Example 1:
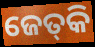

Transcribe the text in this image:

ଜେତ୍‌କି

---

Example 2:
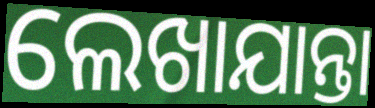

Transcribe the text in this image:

ଲେଖାଯାନ୍ତା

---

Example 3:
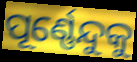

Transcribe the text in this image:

ପୂର୍ଣ୍ଣେନ୍ଦୁକୁ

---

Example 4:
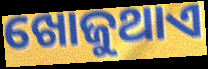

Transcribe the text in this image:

ଖୋଜୁଥାଏ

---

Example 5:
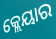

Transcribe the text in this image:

କ୍ଲେୟାର